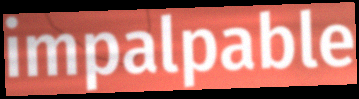
impalpable